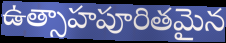
ఉత్సాహపూరితమైన